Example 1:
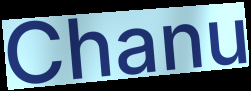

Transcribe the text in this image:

Chanu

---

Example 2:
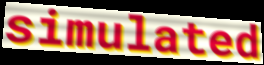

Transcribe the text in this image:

simulated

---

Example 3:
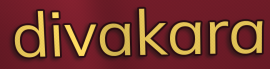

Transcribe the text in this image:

divakara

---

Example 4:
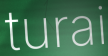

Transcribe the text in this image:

turai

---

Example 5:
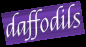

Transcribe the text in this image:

daffodils